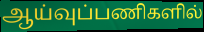
ஆய்வுப்பணிகளில்